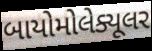
બાયોમોલેક્યૂલર